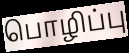
பொழிப்பு